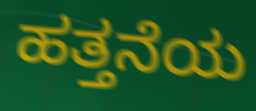
ಹತ್ತನೆಯ